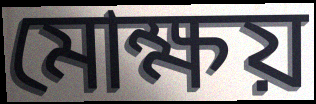
মোক্ষয়